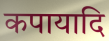
कपायादि